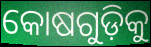
କୋଷଗୁଡ଼ିକୁ